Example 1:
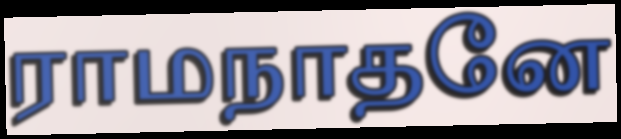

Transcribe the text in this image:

ராமநாதனே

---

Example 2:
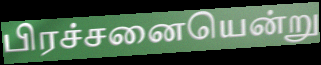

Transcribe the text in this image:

பிரச்சனையென்று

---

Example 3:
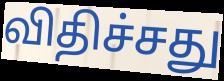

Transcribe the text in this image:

விதிச்சது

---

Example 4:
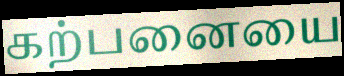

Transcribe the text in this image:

கற்பனையை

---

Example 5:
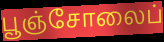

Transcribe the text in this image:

பூஞ்சோலைப்